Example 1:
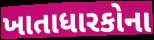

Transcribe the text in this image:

ખાતાધારકોના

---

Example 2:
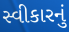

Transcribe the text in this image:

સ્વીકારનું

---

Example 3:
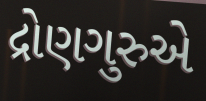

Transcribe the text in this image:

દ્રોણગુરુએ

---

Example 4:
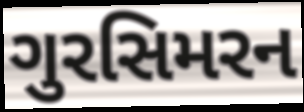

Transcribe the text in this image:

ગુરસિમરન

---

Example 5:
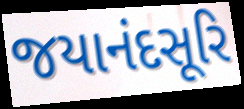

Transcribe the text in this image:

જયાનંદસૂરિ